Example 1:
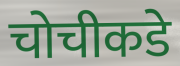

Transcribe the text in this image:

चोचीकडे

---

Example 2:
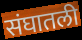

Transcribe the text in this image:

संघातली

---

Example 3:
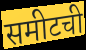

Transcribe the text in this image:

समीटची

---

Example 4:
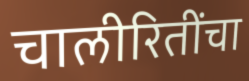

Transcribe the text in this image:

चालीरितींचा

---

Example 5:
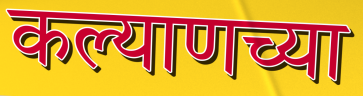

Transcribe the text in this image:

कल्याणच्या